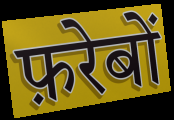
फ़रेबों